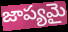
జాప్యమై